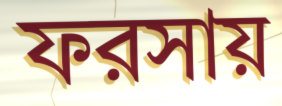
ফরসায়